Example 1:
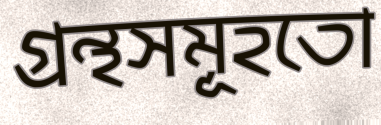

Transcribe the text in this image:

গ্ৰন্থসমূহতো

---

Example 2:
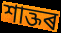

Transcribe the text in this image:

শাক্তৰ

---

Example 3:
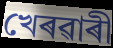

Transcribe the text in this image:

খেৰৱাৰী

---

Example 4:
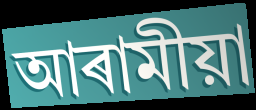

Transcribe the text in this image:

আৰামীয়া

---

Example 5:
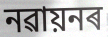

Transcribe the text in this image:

নৱায়নৰ